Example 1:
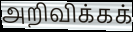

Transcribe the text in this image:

அறிவிக்கக்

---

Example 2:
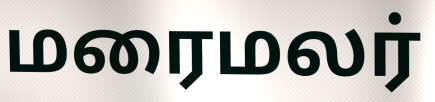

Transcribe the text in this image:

மரைமலர்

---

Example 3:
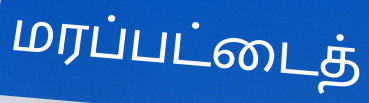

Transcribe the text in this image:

மரப்பட்டைத்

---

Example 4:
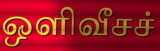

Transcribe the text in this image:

ஒளிவீசச்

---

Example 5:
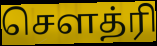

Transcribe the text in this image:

சௌத்ரி